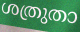
ശത്രുതാ